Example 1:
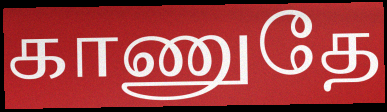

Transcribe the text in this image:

காணுதே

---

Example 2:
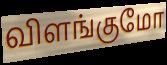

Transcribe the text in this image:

விளங்குமோ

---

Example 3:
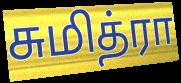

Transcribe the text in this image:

சுமித்ரா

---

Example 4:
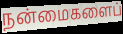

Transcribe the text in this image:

நன்மைகளைப்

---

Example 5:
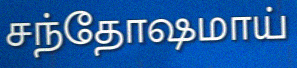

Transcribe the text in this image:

சந்தோஷமாய்